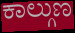
ಕಾಲ್ಗುಣ